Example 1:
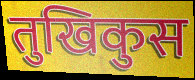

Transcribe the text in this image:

तुखिकुस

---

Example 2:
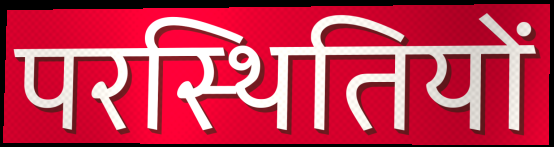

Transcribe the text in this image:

परस्थितियों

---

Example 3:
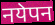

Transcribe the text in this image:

नयेपन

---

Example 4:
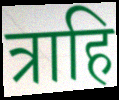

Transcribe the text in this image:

त्राहि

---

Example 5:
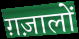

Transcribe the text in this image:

ग़ज़ालों